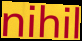
nihil